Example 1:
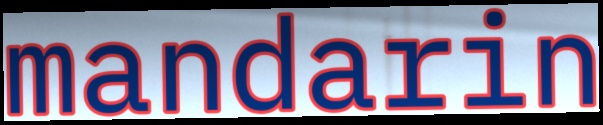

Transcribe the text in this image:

mandarin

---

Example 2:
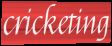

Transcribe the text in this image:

cricketing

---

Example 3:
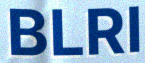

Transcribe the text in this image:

BLRI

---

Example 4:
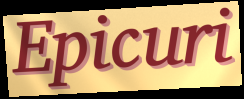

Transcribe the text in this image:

Epicuri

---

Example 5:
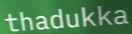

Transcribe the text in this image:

thadukka